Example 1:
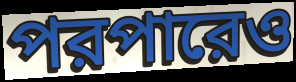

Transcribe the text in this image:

পরপারেও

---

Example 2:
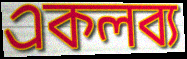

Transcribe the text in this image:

একলব্য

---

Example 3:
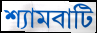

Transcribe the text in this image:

শ্যামবাটি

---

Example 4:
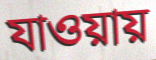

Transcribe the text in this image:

যাওয়ায়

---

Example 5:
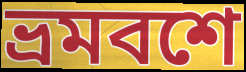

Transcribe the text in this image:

ভ্রমবশে